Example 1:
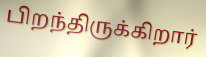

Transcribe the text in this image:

பிறந்திருக்கிறார்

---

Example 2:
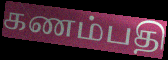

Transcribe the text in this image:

கணம்பதி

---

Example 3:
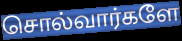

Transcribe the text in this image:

சொல்வார்களே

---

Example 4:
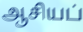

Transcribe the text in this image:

ஆசியப்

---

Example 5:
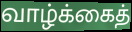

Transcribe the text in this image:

வாழ்க்கைத்